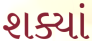
શક્યાં